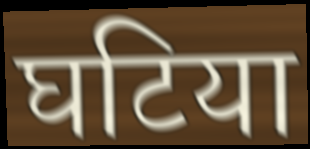
घटिया